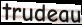
trudeau